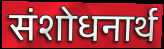
संशोधनार्थ